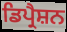
ਡਿਪ੍ਰੈਸ਼ਨ